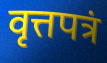
वृत्तपत्रं